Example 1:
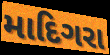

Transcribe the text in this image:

માદિગરા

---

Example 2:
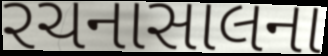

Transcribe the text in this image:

રચનાસાલના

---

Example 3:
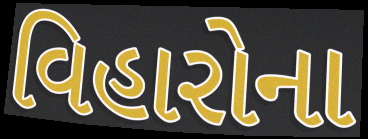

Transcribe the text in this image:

વિહારોના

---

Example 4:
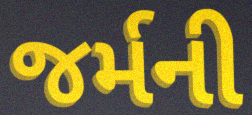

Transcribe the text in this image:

જર્મની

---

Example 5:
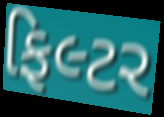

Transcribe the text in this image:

ફિલ્ટર